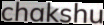
chakshu